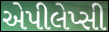
એપીલેપ્સી